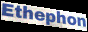
Ethephon